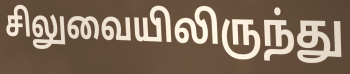
சிலுவையிலிருந்து